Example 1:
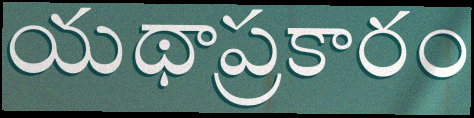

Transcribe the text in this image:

యథాప్రకారం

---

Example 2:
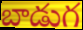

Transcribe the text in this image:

బాడుగ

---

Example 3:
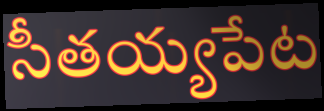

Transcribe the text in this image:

సీతయ్యపేట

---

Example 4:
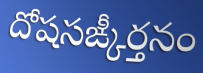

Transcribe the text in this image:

దోషసఙ్కీర్తనం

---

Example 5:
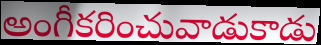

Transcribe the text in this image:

అంగీకరించువాడుకాడు